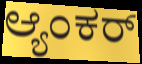
ಆ್ಯಂಕರ್